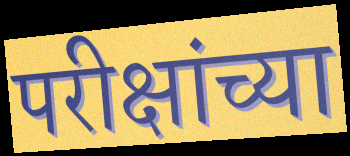
परीक्षांच्या